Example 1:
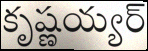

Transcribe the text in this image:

కృష్ణయ్యర్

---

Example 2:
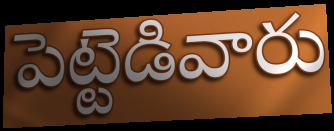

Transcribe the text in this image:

పెట్టెడివారు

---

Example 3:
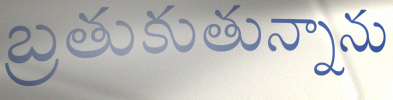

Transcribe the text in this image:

బ్రతుకుతున్నాను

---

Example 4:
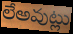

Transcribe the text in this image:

లేఅవుట్లు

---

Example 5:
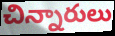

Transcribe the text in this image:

చిన్నారులు